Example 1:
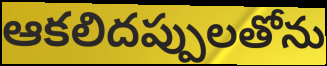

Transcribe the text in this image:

ఆకలిదప్పులతోను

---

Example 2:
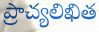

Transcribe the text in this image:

ప్రాచ్యలిఖిత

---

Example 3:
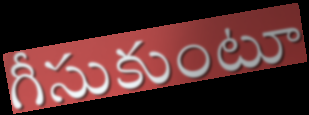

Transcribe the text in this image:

గీసుకుంటూ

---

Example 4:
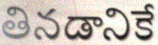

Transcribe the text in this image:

తినడానికే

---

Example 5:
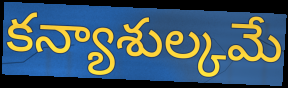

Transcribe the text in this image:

కన్యాశుల్కమే